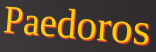
Paedoros